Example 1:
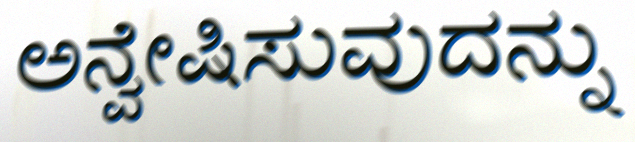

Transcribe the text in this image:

ಅನ್ವೇಷಿಸುವುದನ್ನು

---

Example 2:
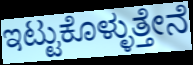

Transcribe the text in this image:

ಇಟ್ಟುಕೊಳ್ಳುತ್ತೇನೆ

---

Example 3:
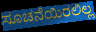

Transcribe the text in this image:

ಸೂಚನೆಯಿರಲಿಲ್ಲ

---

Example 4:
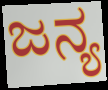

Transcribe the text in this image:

ಜನ್ಯ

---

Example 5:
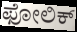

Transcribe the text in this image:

ಫೋಲಿಕ್